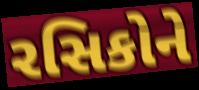
રસિકોને